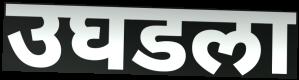
उघडला